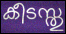
കീടസ്തു